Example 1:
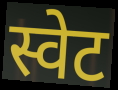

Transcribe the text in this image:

स्वेट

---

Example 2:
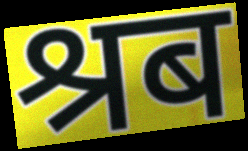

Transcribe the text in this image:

श्रब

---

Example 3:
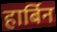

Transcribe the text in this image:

हार्बिन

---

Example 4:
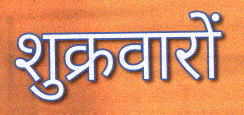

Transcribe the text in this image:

शुक्रवारों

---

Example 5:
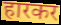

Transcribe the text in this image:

हारकर